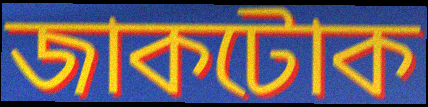
জাকটোক